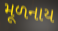
મૂળનાય